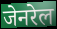
जेनरेल